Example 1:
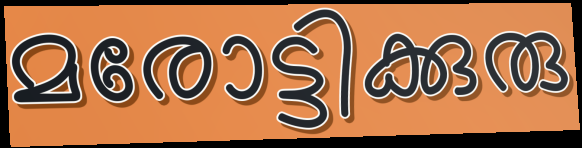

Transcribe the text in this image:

മരോട്ടിക്കുരു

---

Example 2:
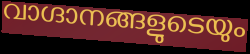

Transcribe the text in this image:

വാഗ്ദാനങ്ങളുടെയും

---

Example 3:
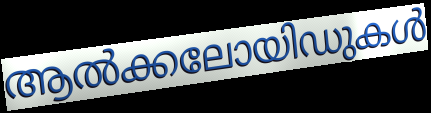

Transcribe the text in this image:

ആൽക്കലോയിഡുകൾ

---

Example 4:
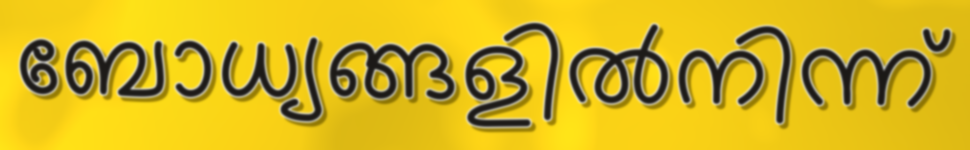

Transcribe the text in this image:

ബോധ്യങ്ങളിൽനിന്ന്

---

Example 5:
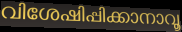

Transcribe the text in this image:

വിശേഷിപ്പിക്കാനാവൂ